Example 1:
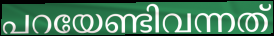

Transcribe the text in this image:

പറയേണ്ടിവന്നത്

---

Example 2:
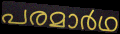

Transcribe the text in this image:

പരമാർഥ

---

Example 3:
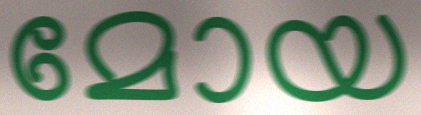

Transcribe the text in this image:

മോയ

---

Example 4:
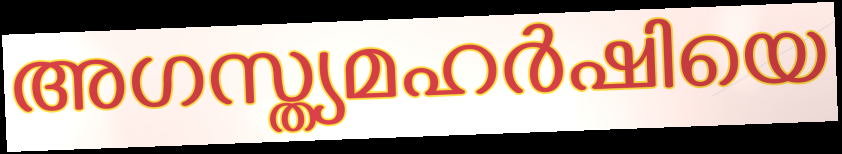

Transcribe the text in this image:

അഗസ്ത്യമഹർഷിയെ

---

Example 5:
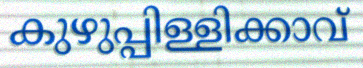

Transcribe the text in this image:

കുഴുപ്പിള്ളിക്കാവ്